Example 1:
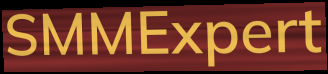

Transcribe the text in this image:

SMMExpert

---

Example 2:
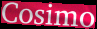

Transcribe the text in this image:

Cosimo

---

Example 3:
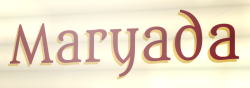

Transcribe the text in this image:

Maryada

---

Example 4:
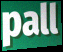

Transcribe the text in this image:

pall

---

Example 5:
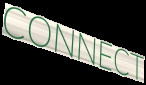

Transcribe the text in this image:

CONNECT